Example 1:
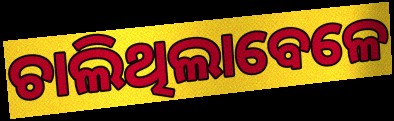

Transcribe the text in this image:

ଚାଲିଥିଲାବେଳେ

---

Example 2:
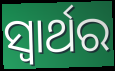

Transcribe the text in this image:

ସ୍ଵାର୍ଥର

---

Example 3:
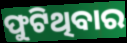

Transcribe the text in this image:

ଫୁଟିଥିବାର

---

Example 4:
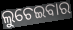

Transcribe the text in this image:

ଲୁଚେଇବାର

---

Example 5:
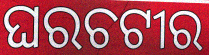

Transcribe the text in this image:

ଘରଚଟୀର